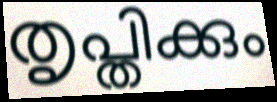
തൃപ്തിക്കും